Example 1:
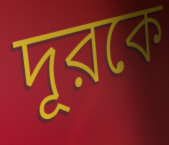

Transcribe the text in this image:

দূরকে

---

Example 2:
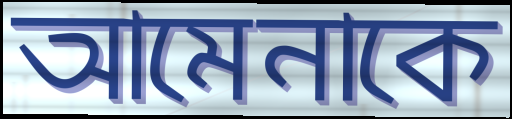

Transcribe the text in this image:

আমেনাকে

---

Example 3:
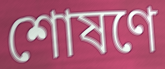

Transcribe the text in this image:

শোষণে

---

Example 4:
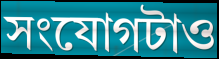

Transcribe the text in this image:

সংযোগটাও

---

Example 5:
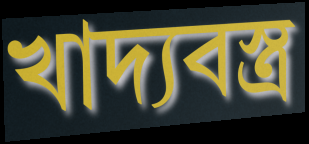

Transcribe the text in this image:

খাদ্যবস্ত্র